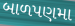
બાળપણમા